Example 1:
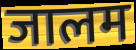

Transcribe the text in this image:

जालम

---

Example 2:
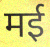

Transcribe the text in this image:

मई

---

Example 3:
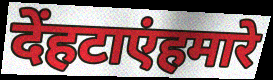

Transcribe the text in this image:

देंहटाएंहमारे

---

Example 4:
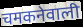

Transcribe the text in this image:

चमकनेवाली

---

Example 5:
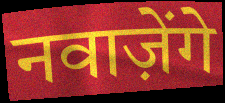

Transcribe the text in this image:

नवाज़ेंगे